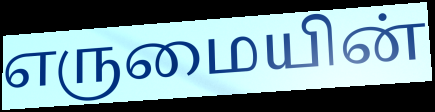
எருமையின்